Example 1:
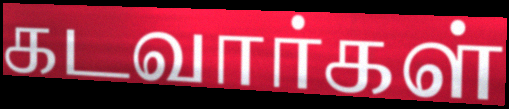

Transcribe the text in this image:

கடவார்கள்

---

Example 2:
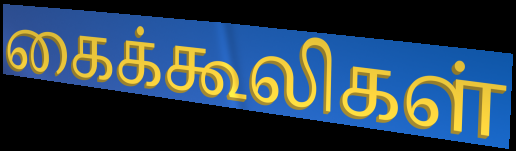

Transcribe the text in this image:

கைக்கூலிகள்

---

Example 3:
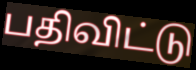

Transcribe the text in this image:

பதிவிட்டு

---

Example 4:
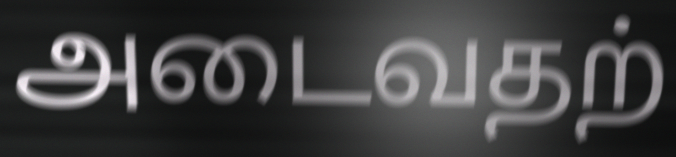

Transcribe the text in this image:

அடைவதற்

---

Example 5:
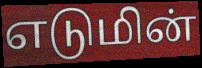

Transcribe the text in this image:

எடுமின்